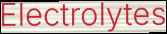
Electrolytes